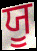
ਯੂ